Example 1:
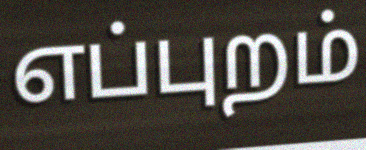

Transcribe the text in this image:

எப்புறம்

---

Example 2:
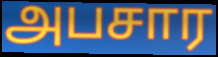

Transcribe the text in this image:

அபசார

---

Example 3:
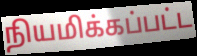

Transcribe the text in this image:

நியமிக்கப்பட்ட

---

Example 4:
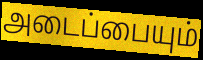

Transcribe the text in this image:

அடைப்பையும்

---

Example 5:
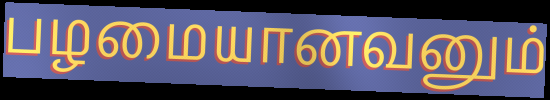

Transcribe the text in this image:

பழமையானவனும்